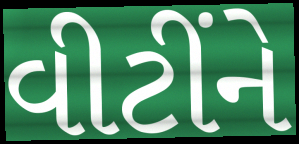
વીટીંને